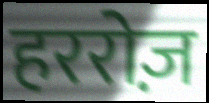
हररोज़